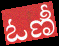
ఓణీ